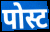
पोस्ट